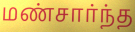
மண்சார்ந்த